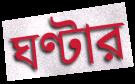
ঘণ্টার